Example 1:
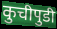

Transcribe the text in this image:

कुचीपुडी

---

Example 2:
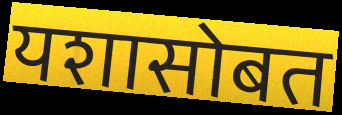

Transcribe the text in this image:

यशासोबत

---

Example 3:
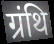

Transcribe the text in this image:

ग्रंथि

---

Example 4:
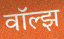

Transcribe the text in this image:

वॉल्झ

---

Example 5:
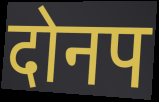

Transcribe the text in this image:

दोनप